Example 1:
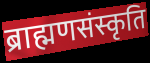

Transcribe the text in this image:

ब्राह्मणसंस्कृति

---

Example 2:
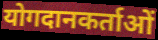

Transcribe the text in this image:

योगदानकर्ताओं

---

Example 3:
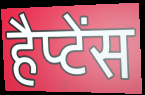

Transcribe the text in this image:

हैप्टेंस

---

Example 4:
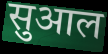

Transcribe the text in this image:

सुआल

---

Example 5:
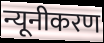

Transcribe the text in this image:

न्यूनीकरण